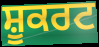
ਸ਼ੂਕਰਟ